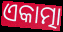
ଏକାତ୍ମା